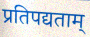
प्रतिपद्यताम्